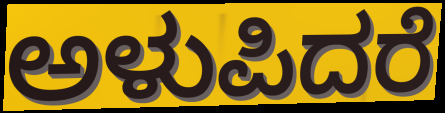
ಅಳುಪಿದರೆ